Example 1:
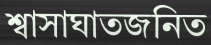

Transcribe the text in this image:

শ্বাসাঘাতজনিত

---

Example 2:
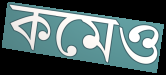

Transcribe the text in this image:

কমেও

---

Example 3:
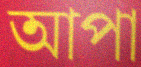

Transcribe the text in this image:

আপা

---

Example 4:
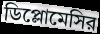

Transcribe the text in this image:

ডিপ্লোমেসির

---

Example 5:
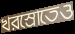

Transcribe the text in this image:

খরস্রোতেও